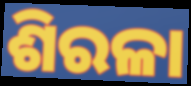
ଶିରଳା